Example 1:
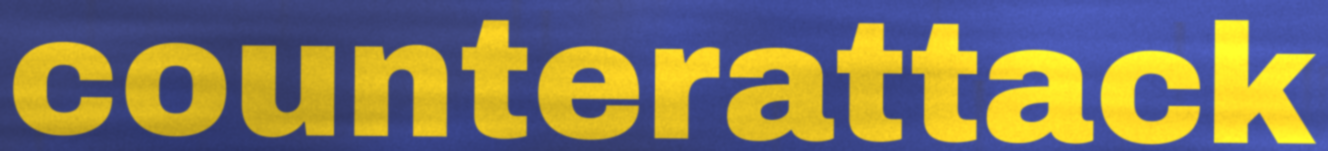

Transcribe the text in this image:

counterattack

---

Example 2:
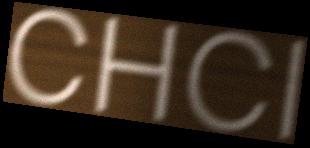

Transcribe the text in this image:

CHCl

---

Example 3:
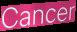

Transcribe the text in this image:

Cancer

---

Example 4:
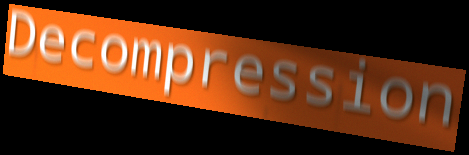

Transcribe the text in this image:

Decompression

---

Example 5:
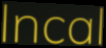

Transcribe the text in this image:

Incal